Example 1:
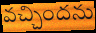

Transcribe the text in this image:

వచ్చిందను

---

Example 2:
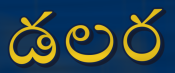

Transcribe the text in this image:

డలర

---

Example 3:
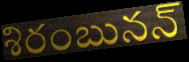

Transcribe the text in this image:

శిరంబునన్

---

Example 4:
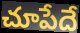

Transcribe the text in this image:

చూపేదే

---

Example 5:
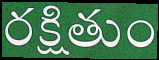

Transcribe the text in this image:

రక్షితుం